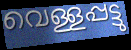
വെള്ളപ്പട്ടു